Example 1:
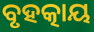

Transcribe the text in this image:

ବୃହତ୍କାୟ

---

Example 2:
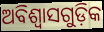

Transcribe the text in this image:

ଅବିଶ୍ଵାସଗୁଡ଼ିକ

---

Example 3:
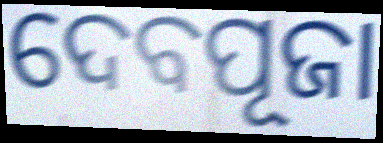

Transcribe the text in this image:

ଦେବପୂଜା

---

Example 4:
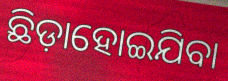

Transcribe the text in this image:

ଛିଡ଼ାହୋଇଯିବା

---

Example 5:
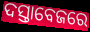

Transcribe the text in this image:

ଦସ୍ତାବେଜରେ